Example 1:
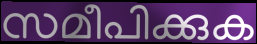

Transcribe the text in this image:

സമീപിക്കുക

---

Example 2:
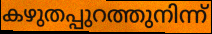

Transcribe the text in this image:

കഴുതപ്പുറത്തുനിന്ന്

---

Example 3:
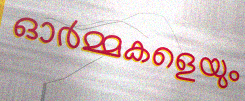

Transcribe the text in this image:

ഓർമ്മകളെയും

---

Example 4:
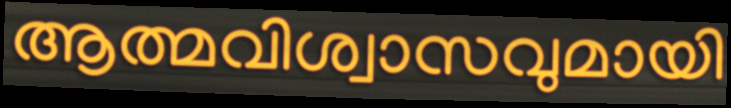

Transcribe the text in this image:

ആത്മവിശ്വാസവുമായി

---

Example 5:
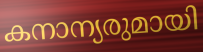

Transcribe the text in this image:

കനാന്യരുമായി